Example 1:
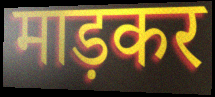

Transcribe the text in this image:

माड़कर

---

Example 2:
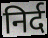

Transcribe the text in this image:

निर्द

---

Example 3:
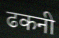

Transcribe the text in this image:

ढकनी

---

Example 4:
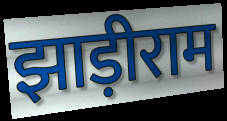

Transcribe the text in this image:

झाड़ीराम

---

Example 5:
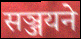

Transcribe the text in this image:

सञ्जयने